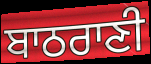
ਬਾਠਰਾਣੀ